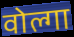
वोल्गा